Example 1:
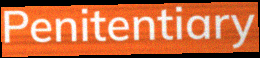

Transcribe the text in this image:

Penitentiary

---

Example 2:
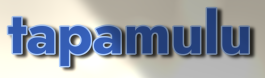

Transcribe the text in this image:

tapamulu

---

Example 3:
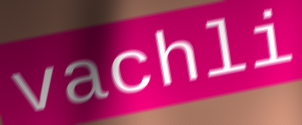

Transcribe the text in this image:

vachli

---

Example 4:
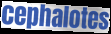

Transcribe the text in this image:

cephalotes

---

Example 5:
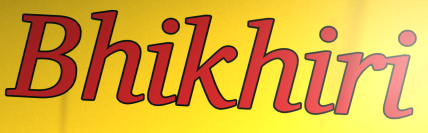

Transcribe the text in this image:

Bhikhiri